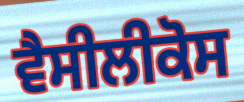
ਵੈਸੀਲੀਕੋਸ